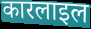
कारलाइल